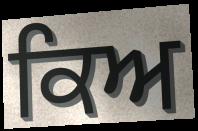
ਕਿਅ